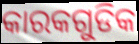
କାରକଗୁଡିକ